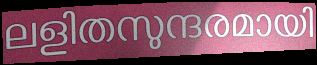
ലളിതസുന്ദരമായി